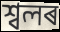
শ্বলৰ